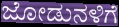
ಜೋಡುನಳಿಗೆ